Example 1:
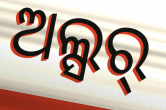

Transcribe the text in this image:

ଅଲ୍ସର୍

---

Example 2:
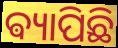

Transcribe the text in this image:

ଵ୍ୟାପିଛି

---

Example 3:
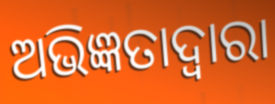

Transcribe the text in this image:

ଅଭିଜ୍ଞତାଦ୍ଵାରା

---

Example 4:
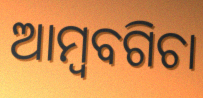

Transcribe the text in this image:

ଆମ୍ବବଗିଚା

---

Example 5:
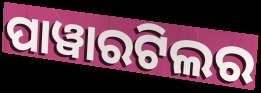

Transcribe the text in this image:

ପାୱାରଟିଲର